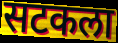
सटकला